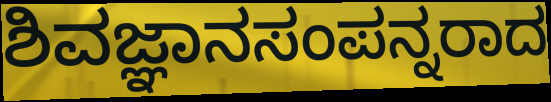
ಶಿವಜ್ಞಾನಸಂಪನ್ನರಾದ